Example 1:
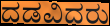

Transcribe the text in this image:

ದಡವಿದರು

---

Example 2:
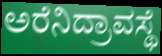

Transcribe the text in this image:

ಅರೆನಿದ್ರಾವಸ್ಥೆ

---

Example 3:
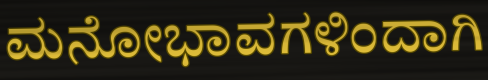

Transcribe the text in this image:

ಮನೋಭಾವಗಳಿಂದಾಗಿ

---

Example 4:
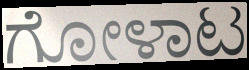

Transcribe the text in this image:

ಗೋಳಾಟ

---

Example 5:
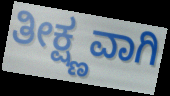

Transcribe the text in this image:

ತೀಕ್ಷ್ಣವಾಗಿ